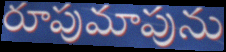
రూపుమాపును